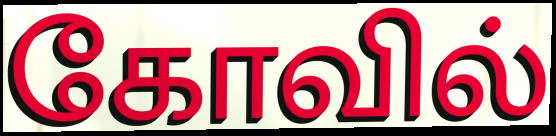
கோவில்